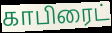
காபிரைட்